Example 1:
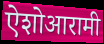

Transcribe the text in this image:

ऐशोआरामी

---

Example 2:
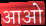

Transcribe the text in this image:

आओ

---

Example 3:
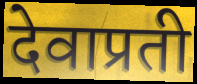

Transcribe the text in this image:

देवाप्रती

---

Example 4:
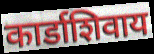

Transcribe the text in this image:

कार्डाशिवाय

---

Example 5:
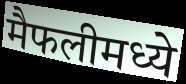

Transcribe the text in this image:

मैफलीमध्ये